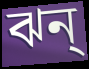
ঝন্